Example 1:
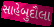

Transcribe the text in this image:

સાહેબુદૌલા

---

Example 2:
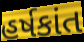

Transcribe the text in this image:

હર્ષકાંત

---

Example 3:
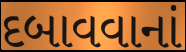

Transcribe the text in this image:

દબાવવાનાં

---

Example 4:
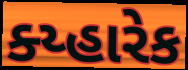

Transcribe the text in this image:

ક્ય્હારેક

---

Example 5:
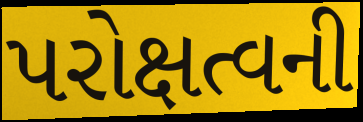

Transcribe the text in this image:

પરોક્ષત્વની